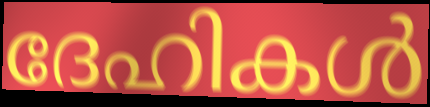
ദേഹികൾ